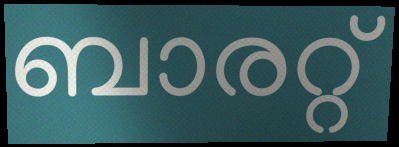
ബാരറ്റ്